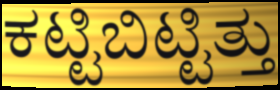
ಕಟ್ಟಿಬಿಟ್ಟಿತ್ತು